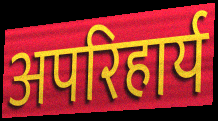
अपरिहार्य